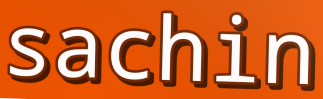
sachin